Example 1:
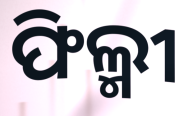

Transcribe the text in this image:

ଫିଲ୍ମୀ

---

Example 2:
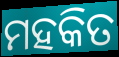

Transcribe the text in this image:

ମହକିତ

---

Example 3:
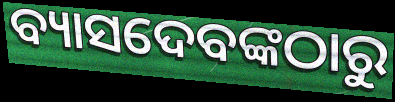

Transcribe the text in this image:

ବ୍ୟାସଦେବଙ୍କଠାରୁ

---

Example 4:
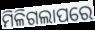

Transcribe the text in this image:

ମିଳିଗଲାପରେ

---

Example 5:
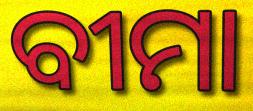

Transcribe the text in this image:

ବୀମା